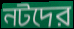
নটদের